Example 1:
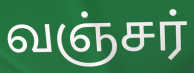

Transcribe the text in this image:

வஞ்சர்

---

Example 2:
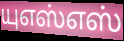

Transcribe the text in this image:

யுஎஸ்எஸ்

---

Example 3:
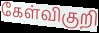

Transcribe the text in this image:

கேள்விகுறி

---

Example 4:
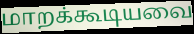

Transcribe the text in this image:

மாறக்கூடியவை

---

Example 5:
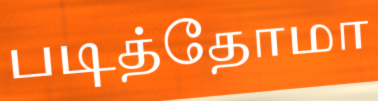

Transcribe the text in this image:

படித்தோமா